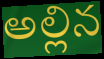
అల్లిన